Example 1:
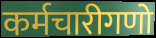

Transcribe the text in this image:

कर्मचारीगणो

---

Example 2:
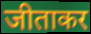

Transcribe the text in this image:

जीताकर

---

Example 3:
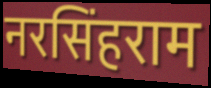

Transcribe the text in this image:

नरसिंहराम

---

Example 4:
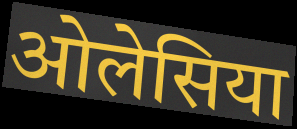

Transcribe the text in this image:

ओलेसिया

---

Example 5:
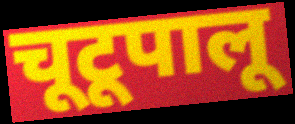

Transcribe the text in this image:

चूटूपालू